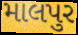
માલપુર